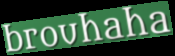
brouhaha